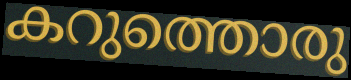
കറുത്തൊരു